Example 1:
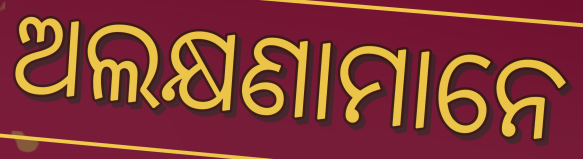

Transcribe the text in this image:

ଅଲକ୍ଷଣାମାନେ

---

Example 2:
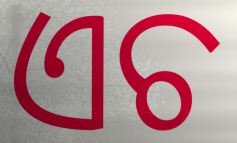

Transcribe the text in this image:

ଏଚ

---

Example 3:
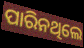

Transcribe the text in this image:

ପାରିନଥିଲେ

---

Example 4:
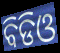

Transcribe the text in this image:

ବିଡିଓ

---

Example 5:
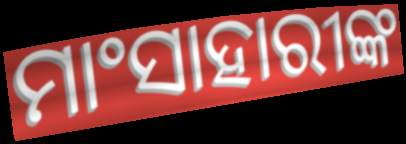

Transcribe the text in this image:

ମାଂସାହାରୀଙ୍କ